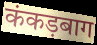
कंकड़बाग